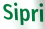
Sipri